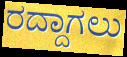
ರದ್ದಾಗಲು